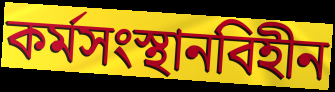
কর্মসংস্থানবিহীন